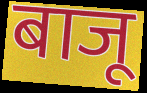
बाजू